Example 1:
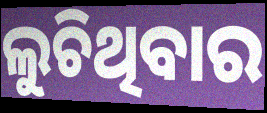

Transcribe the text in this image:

ଲୁଚିଥିବାର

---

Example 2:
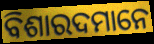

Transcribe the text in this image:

ବିଶାରଦମାନେ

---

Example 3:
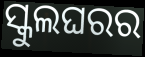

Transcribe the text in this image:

ସ୍କୁଲଘରର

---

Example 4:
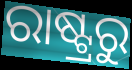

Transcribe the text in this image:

ରାଷ୍ଟ୍ରରୁ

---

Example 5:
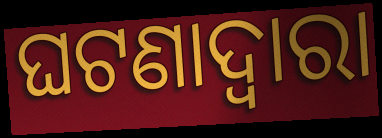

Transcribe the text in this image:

ଘଟଣାଦ୍ୱାରା